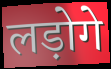
लड़ोगे